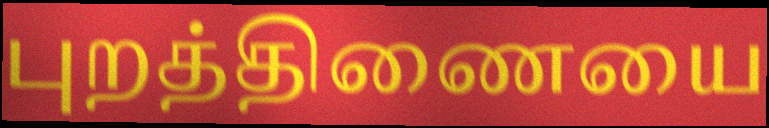
புறத்திணையை